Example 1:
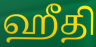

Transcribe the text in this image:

ஹீதி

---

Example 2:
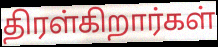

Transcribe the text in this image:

திரள்கிறார்கள்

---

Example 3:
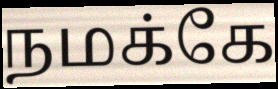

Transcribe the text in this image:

நமக்கே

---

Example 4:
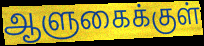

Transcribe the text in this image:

ஆளுகைக்குள்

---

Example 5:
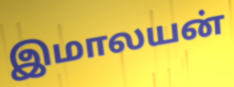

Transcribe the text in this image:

இமாலயன்